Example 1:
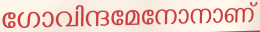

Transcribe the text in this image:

ഗോവിന്ദമേനോനാണ്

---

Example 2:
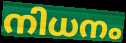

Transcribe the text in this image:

നിധനം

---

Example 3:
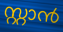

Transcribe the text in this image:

സ്റ്റാൻ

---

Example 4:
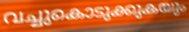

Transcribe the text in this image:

വച്ചുകൊടുക്കുകയും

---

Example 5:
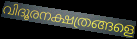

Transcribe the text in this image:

വിദൂരനക്ഷത്രങ്ങളെ